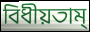
বিধীয়তাম্